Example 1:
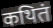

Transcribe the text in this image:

कथितं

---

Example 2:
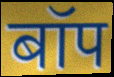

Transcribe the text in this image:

बॉप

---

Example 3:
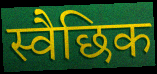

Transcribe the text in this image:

स्वैछिक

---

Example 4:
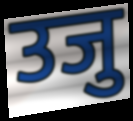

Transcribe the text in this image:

उजु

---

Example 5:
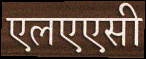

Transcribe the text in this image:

एलएएसी